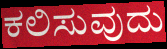
ಕಲಿಸುವುದು